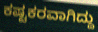
ಕಷ್ಟಕರವಾಗಿದ್ದು